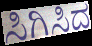
ಸಿಗಿಸಿದ